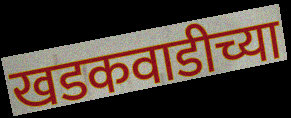
खडकवाडीच्या